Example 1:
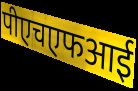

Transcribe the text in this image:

पीएचएफआई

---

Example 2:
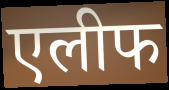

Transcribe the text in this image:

एलीफ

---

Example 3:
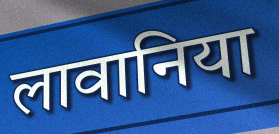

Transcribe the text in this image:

लावानिया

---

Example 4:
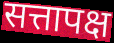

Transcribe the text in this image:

सत्तापक्ष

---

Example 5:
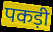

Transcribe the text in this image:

पकड़ी